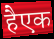
हैएक